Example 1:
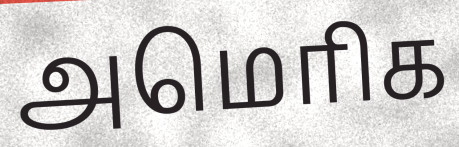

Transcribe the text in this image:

அமெரிக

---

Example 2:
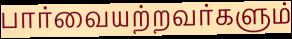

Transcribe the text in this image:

பார்வையற்றவர்களும்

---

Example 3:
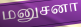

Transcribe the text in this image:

மனுசனா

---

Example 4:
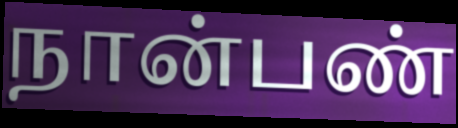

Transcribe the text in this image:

நான்பண்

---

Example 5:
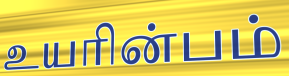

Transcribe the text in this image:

உயரின்பம்